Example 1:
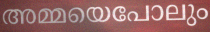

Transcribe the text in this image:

അമ്മയെപോലും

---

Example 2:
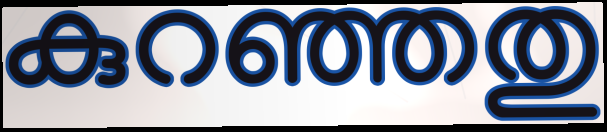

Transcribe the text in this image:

കുറഞ്ഞതു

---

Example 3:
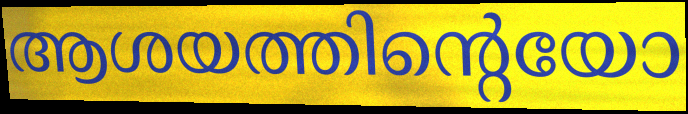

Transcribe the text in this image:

ആശയത്തിന്റെയോ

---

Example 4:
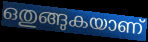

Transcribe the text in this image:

ഒതുങ്ങുകയാണ്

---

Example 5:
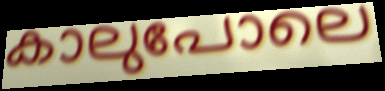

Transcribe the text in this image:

കാലുപോലെ